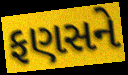
ફણસને